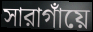
সারাগাঁয়ে